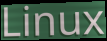
Linux